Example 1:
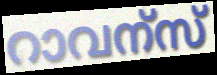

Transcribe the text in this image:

റാവന്സ്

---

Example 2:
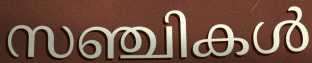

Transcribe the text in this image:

സഞ്ചികൾ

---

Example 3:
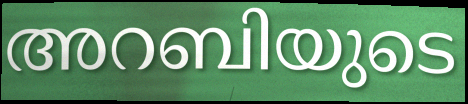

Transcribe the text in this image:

അറബിയുടെ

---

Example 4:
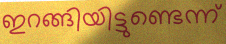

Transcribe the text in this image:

ഇറങ്ങിയിട്ടുണ്ടെന്ന്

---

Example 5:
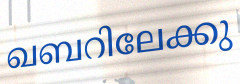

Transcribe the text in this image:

ഖബറിലേക്കു